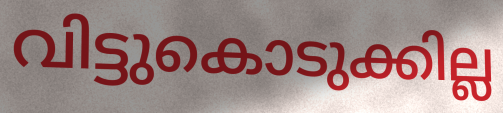
വിട്ടുകൊടുക്കില്ല